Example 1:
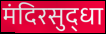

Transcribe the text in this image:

मंदिरसुद्धा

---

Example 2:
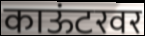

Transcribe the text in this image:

काऊंटरवर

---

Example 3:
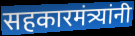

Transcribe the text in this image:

सहकारमंत्र्यांनी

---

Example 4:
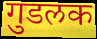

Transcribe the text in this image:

गुडलक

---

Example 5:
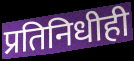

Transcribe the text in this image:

प्रतिनिधीही